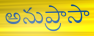
అనుప్రాసా